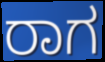
ರಾಗ